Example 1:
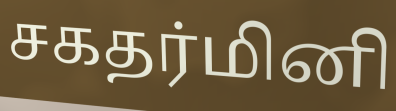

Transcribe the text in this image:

சகதர்மினி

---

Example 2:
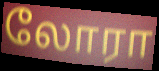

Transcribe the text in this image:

லோரா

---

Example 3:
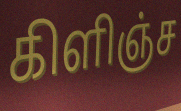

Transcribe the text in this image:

கிளிஞ்ச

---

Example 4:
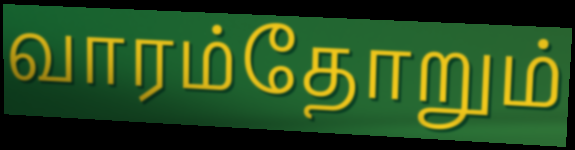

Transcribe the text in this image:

வாரம்தோறும்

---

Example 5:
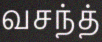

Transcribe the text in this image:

வசந்த்